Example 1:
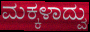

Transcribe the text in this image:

ಮಕ್ಕಳಾದ್ವು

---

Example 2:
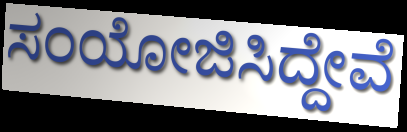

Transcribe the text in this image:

ಸಂಯೋಜಿಸಿದ್ದೇವೆ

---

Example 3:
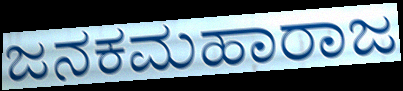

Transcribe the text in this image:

ಜನಕಮಹಾರಾಜ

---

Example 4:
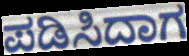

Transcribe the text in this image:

ಪಡಿಸಿದಾಗ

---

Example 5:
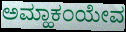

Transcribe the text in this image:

ಅಮ್ಹಾಕಂಯೇವ